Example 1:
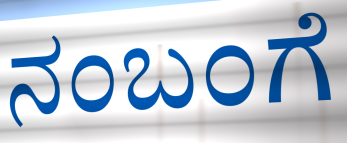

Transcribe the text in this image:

ನಂಬಂಗೆ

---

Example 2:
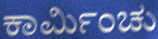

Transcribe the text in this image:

ಕಾರ್ಮಿಂಚು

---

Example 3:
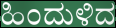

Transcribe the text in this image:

ಹಿಂದುಳಿದ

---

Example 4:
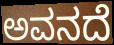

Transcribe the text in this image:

ಅವನದೆ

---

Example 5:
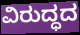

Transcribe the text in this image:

ವಿರುದ್ಧದ